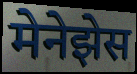
मेनेझेस